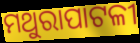
ମଥୁରାପାଟଳୀ